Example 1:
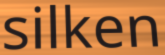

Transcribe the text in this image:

silken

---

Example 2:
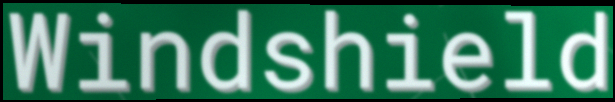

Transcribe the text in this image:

Windshield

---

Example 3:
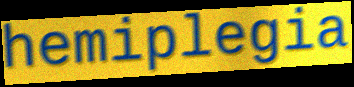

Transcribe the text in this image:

hemiplegia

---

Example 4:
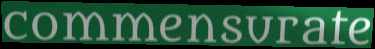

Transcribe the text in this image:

commensurate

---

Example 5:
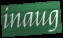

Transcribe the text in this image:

inaug